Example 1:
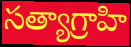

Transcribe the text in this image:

సత్యాగ్రాహి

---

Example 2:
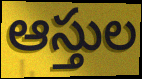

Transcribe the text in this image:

ఆస్తుల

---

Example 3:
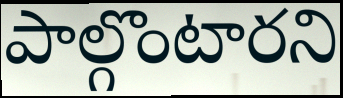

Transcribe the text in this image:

పాల్గొంటారని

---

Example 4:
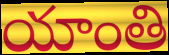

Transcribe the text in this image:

యాంతి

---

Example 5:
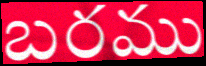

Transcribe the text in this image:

బరము